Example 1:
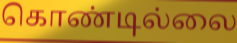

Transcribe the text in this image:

கொண்டில்லை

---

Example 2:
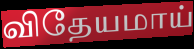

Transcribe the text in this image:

விதேயமாய்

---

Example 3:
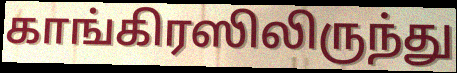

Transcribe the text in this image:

காங்கிரஸிலிருந்து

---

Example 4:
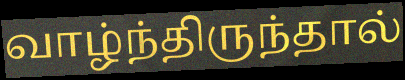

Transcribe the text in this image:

வாழ்ந்திருந்தால்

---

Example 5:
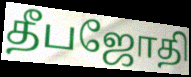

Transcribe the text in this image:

தீபஜோதி